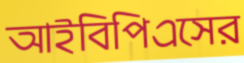
আইবিপিএসের